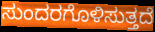
ಸುಂದರಗೊಳಿಸುತ್ತದೆ